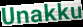
Unakku